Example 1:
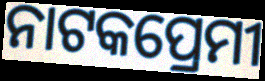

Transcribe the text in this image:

ନାଟକପ୍ରେମୀ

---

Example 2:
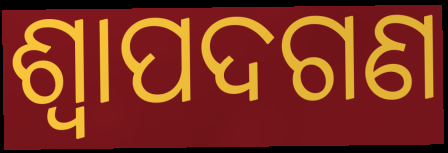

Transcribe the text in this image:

ଶ୍ୱାପଦଗଣ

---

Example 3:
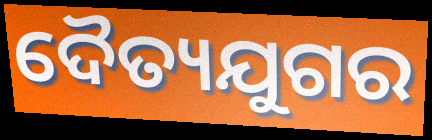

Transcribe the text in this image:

ଦୈତ୍ୟଯୁଗର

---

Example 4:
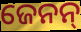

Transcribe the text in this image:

ଜେନନ୍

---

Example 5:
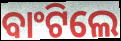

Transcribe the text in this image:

ବାଂଟିଲେ